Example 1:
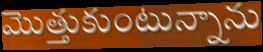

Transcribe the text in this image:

మొత్తుకుంటున్నాను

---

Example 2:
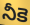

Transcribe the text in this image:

నీకె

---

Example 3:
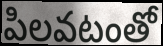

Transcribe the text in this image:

పిలవటంతో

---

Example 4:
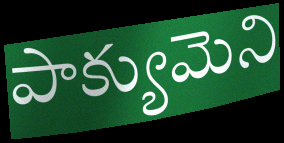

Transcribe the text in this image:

పాక్యుమెని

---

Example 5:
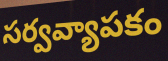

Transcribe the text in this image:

సర్వవ్యాపకం